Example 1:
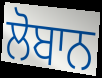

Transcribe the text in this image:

ਲੋਬਾਨ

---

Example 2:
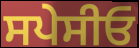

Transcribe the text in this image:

ਸਪੇਸੀਓ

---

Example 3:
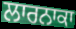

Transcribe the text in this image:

ਲਾਰਨਾਕਾ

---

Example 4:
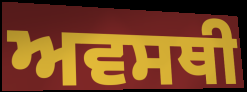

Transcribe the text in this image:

ਅਵਸਥੀ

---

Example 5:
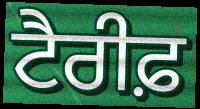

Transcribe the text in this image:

ਟੈਰੀਫ਼